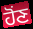
ਹੋਂਣ